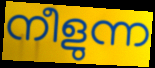
നീളുന്ന